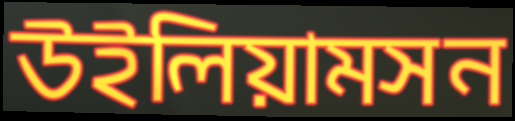
উইলিয়ামসন